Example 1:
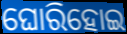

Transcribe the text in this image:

ଘୋରିହୋଇ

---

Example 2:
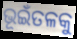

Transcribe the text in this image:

ଭୂଇଁତଳକୁ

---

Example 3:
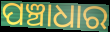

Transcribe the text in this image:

ପଞ୍ଚାଧାର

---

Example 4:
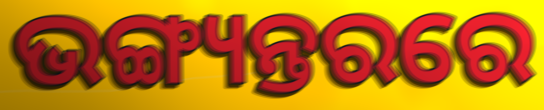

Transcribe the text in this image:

ଭଙ୍ଗ୍ୟନ୍ତରରେ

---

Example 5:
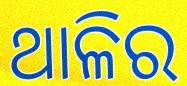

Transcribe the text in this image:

ଥାଳିର